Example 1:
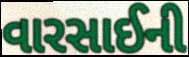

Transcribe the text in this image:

વારસાઈની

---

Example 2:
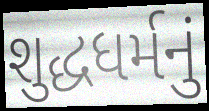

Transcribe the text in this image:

શુદ્ધધર્મનું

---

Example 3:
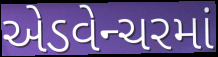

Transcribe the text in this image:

એડવેન્ચરમાં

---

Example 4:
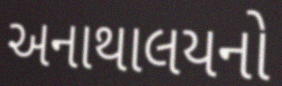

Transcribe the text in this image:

અનાથાલયનો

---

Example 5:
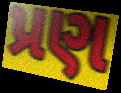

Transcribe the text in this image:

પ્રણ